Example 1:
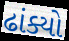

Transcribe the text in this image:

ઢાંક્યો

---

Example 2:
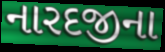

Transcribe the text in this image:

નારદજીના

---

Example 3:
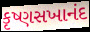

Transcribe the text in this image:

કૃષ્ણસખાનંદ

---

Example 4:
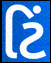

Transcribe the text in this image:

ટિં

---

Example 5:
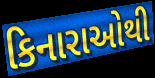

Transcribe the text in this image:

કિનારાઓથી